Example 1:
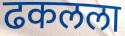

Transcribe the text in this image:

ढकलला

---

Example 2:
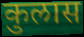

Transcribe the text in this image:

कुलास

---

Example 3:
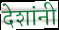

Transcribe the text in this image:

देशांनी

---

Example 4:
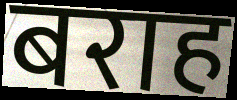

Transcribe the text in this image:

बराह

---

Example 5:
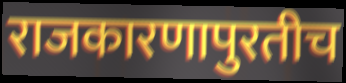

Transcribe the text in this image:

राजकारणापुरतीच